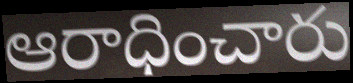
ఆరాధించారు